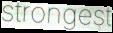
strongest